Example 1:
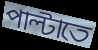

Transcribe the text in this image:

পাল্টাতে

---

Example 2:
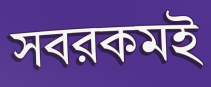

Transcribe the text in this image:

সবরকমই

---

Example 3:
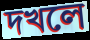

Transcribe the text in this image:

দখলে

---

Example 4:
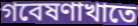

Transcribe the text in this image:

গবেষণাখাতে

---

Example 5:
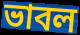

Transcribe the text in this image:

ভাবল